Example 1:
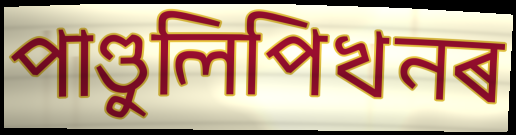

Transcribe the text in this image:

পাণ্ডুলিপিখনৰ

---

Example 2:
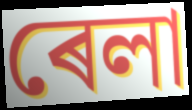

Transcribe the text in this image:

ৰেলা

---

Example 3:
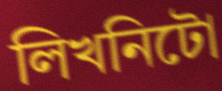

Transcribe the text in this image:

লিখনিটো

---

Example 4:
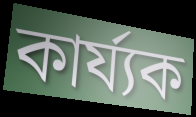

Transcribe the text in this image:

কাৰ্য্যক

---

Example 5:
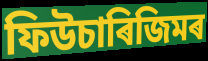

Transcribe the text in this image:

ফিউচাৰিজিমৰ